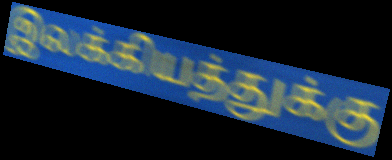
இலக்கியத்துக்கு